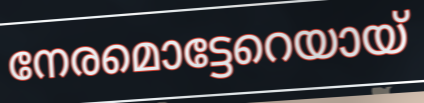
നേരമൊട്ടേറെയായ്